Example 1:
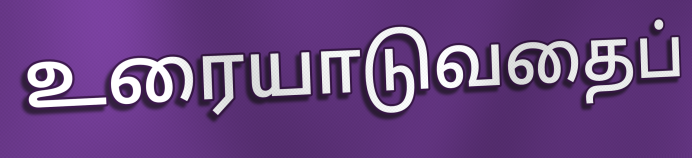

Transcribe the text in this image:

உரையாடுவதைப்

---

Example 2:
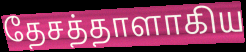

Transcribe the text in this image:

தேசத்தாளாகிய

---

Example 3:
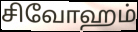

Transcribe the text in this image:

சிவோஹம்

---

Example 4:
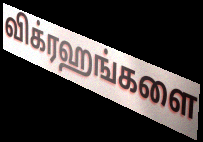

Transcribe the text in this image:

விக்ரஹங்களை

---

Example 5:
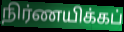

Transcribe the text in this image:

நிர்ணயிக்கப்